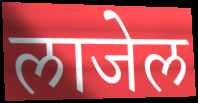
लाजेल